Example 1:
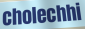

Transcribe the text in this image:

cholechhi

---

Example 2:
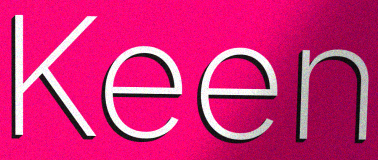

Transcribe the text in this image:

Keen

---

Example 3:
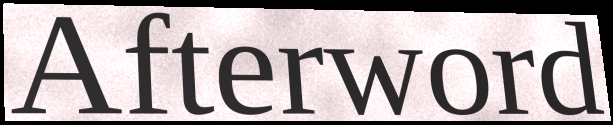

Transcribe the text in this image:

Afterword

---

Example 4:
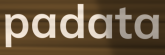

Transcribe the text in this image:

padata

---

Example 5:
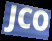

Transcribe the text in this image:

JCO